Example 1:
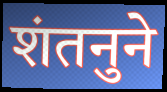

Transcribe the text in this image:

शंतनुने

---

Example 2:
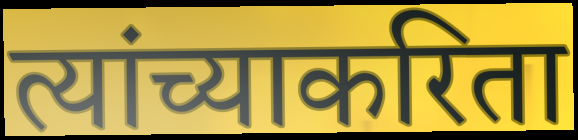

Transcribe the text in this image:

त्यांच्याकरिता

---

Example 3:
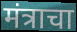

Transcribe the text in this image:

मंत्राचा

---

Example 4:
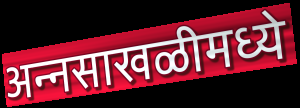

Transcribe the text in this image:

अन्नसाखळीमध्ये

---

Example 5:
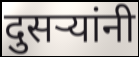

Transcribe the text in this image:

दुसर्‍यांनी